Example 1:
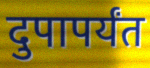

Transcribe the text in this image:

दुपापर्यंत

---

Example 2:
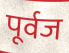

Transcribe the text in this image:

पूर्वज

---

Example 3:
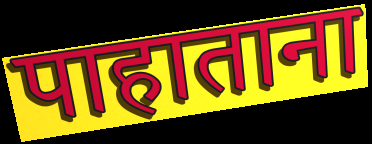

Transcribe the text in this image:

पाहाताना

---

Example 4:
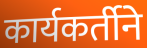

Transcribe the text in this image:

कार्यकर्तीने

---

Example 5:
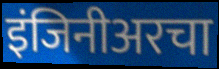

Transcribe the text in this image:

इंजिनीअरचा